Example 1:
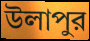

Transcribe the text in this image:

উলাপুর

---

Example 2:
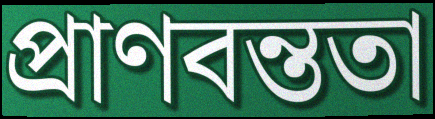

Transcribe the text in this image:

প্রাণবন্ততা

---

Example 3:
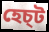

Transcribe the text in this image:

হেচ্ট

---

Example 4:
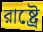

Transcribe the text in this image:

রাষ্ট্রে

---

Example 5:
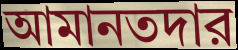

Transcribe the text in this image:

আমানতদার